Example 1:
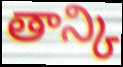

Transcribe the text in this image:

తాన్కి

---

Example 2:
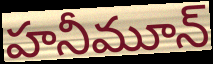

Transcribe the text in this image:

హనీమూన్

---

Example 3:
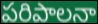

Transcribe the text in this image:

పరిపాలనా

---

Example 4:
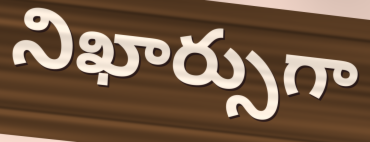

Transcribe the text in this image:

నిఖార్సుగా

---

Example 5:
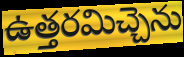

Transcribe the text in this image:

ఉత్తరమిచ్చెను